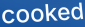
cooked